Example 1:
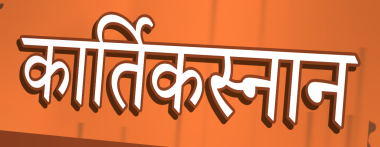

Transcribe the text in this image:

कार्तिकस्नान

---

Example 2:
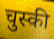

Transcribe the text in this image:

चुस्की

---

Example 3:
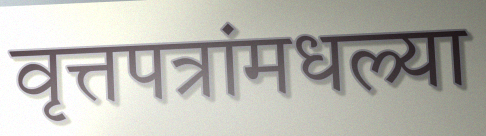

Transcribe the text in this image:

वृत्तपत्रांमधल्या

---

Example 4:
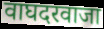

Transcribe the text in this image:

वाघदरवाजा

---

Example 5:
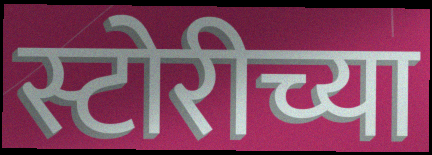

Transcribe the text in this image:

स्टोरीच्या